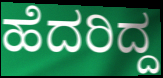
ಹೆದರಿದ್ದ